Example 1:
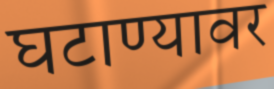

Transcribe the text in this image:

घटाण्यावर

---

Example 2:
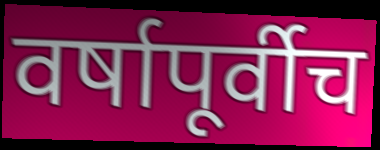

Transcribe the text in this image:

वर्षापूर्वीच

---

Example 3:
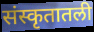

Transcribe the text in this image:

संस्कृतातली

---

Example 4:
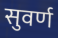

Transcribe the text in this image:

सुवर्ण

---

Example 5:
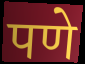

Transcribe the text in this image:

पणे